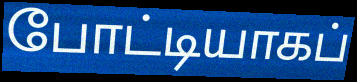
போட்டியாகப்